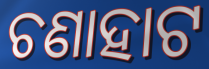
ଚଣାହାଟ